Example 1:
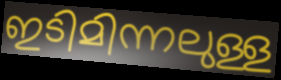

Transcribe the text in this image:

ഇടിമിന്നലുള്ള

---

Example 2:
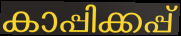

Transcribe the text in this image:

കാപ്പിക്കപ്പ്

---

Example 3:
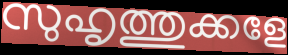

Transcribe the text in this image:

സുഹൃത്തുക്കളേ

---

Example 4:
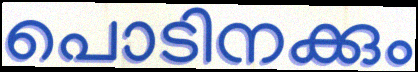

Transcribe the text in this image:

പൊടിനക്കും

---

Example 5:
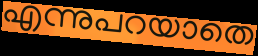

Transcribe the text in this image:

എന്നുപറയാതെ